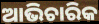
ଆଭିଚାରିକ